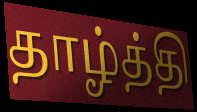
தாழ்த்தி